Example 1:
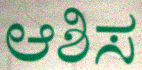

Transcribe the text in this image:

ಆಶಿಸ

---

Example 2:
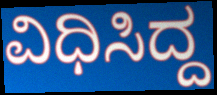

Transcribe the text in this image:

ವಿಧಿಸಿದ್ದ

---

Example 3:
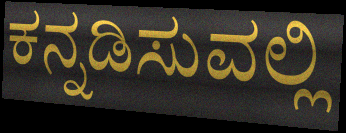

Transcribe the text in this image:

ಕನ್ನಡಿಸುವಲ್ಲಿ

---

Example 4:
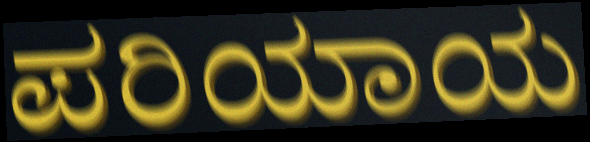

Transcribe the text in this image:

ಪರಿಯಾಯ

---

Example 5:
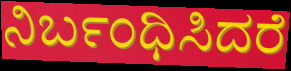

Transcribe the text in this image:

ನಿರ್ಬಂಧಿಸಿದರೆ